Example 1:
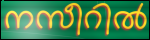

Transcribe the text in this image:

നസീറിൽ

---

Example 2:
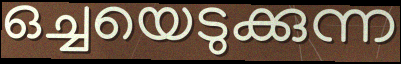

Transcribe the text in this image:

ഒച്ചയെടുക്കുന്ന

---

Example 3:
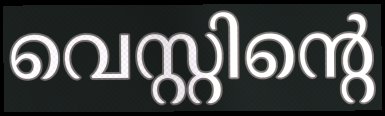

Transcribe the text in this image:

വെസ്റ്റിന്റെ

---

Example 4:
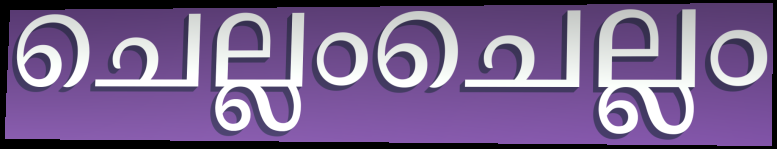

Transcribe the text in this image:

ചെല്ലംചെല്ലം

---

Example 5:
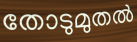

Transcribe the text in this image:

തോടുമുതൽ